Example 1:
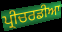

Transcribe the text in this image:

ਪ੍ਰੀਚਰਡੀਆ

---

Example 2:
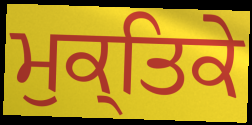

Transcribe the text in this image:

ਮੁਕ੍ਤਿਕੇ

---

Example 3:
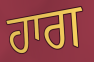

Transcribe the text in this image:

ਹਾਗ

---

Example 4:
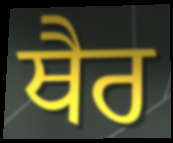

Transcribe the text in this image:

ਥੈਰ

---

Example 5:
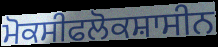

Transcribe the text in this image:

ਮੋਕਸੀਫਲੋਕਸ਼ਾਸੀਨ